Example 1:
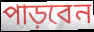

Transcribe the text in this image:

পাড়বেন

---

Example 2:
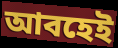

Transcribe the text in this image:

আবহেই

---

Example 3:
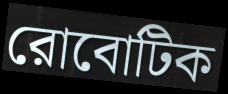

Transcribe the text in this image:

রোবোটিক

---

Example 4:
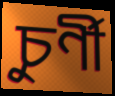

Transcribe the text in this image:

চুর্ণী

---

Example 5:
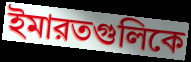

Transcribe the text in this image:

ইমারতগুলিকে